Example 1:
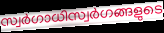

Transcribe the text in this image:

സ്വർഗാധിസ്വർഗങ്ങളുടെ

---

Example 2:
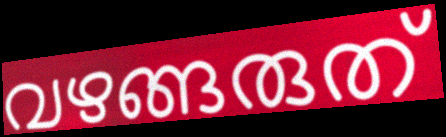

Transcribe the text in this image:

വഴങ്ങരുത്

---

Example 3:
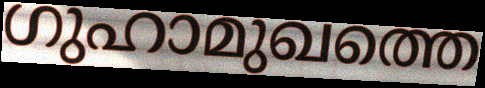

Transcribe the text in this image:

ഗുഹാമുഖത്തെ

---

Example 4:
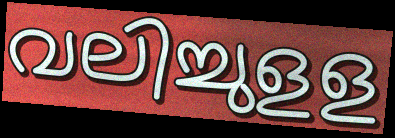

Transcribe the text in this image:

വലിച്ചുളള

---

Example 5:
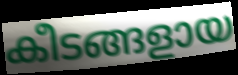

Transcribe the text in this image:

കീടങ്ങളായ